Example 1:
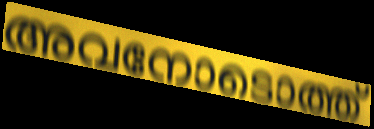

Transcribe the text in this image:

അവനോടൊത്ത്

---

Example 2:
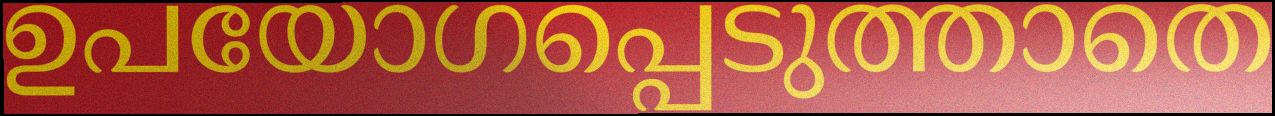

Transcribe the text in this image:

ഉപയോഗപ്പെടുത്താതെ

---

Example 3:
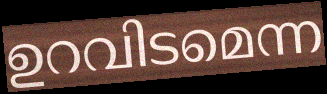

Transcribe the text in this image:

ഉറവിടമെന്ന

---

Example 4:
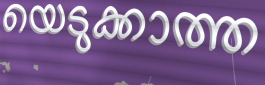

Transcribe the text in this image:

യെടുക്കാത്ത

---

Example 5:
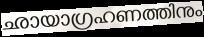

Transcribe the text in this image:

ഛായാഗ്രഹണത്തിനും